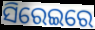
ସିରେଇରେ